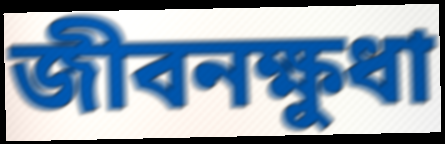
জীবনক্ষুধা